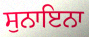
ਸੁਨਾਇਨਾ